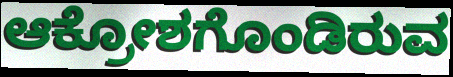
ಆಕ್ರೋಶಗೊಂಡಿರುವ